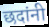
छदांनी